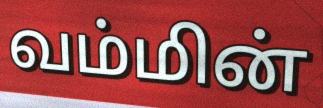
வம்மின்